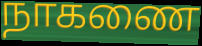
நாகணை